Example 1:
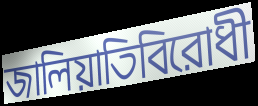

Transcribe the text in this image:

জালিয়াতিবিরোধী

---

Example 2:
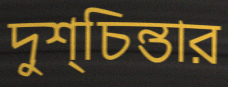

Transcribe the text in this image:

দুশ্‌চিন্তার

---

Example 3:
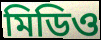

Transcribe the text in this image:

মিডিও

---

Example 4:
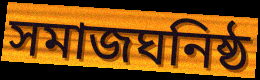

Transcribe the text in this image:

সমাজঘনিষ্ঠ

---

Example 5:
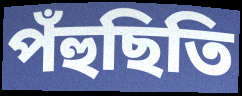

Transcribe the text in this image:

পঁহুছিতি